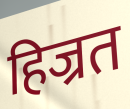
हिज्रत